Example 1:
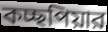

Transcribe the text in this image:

কচ্ছপিয়ার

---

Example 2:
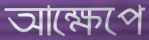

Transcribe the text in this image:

আক্ষেপে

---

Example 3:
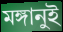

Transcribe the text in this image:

মঙ্গানুই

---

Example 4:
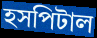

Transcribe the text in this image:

হসপিটাল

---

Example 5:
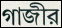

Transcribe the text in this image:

গাজীর